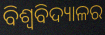
ବିଶ୍ୱବିଦ୍ୟାଳର